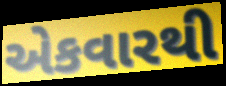
એકવારથી